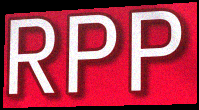
RPP